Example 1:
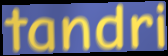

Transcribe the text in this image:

tandri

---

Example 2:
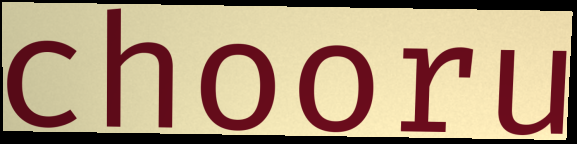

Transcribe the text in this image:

chooru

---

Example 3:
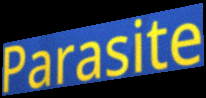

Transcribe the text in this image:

Parasite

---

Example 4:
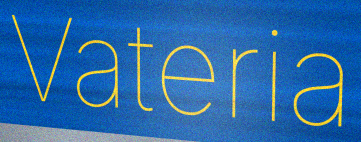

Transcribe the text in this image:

Vateria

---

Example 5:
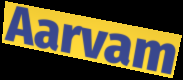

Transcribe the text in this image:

Aarvam